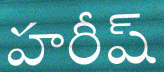
హరీష్